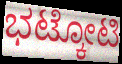
ಭಟ್ಕೋಟಿ